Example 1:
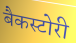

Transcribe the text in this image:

बैकस्टोरी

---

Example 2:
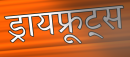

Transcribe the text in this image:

ड्रायफ्रूट्स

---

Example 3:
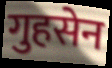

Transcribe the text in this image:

गुहसेन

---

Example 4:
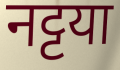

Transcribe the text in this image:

नट्टया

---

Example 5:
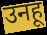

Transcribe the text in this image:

उनहू